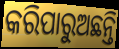
କରିପାରୁଅଛନ୍ତି